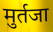
मुर्तजा